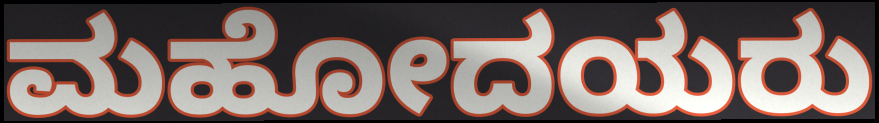
ಮಹೋದಯರು